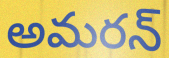
అమరన్